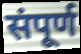
संपूर्ण